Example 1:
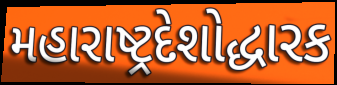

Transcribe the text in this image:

મહારાષ્ટ્રદેશોદ્ધારક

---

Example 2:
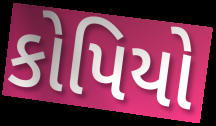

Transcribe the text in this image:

કોપિયો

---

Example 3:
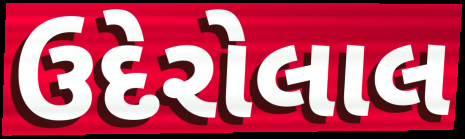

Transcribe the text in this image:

ઉદેરોલાલ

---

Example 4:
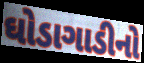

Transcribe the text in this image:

ઘોડાગાડીનો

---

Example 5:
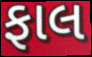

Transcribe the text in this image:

ફાલ